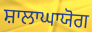
ਸ਼ਾਲਾਘਾਯੋਗ